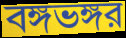
বঙ্গভঙ্গর